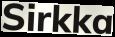
Sirkka